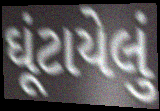
ઘૂંટાયેલું